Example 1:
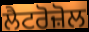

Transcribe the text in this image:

ਲੈਟਰੋਜ਼ੋਲ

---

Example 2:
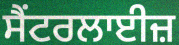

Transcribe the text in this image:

ਸੈਂਟਰਲਾਈਜ਼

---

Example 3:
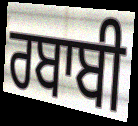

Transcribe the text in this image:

ਰਬਾਬੀ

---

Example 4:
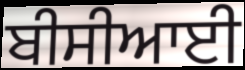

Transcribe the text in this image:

ਬੀਸੀਆਈ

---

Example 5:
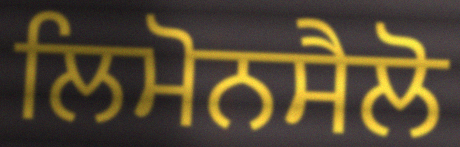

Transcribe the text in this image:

ਲਿਮੋਨਸੈਲੋ